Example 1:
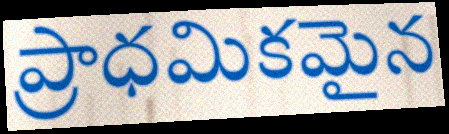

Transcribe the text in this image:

ప్రాధమికమైన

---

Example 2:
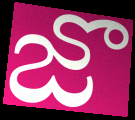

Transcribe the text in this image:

జొ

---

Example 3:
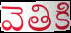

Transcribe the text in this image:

వెతికి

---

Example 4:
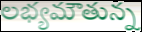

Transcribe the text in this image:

లభ్యమౌతున్న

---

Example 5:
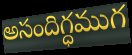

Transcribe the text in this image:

అసందిగ్ధముగ